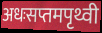
अधःसप्तमपृथ्वी